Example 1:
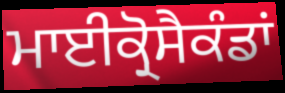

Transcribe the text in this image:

ਮਾਈਕ੍ਰੋਸੈਕੰਡਾਂ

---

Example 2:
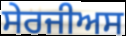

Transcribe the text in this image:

ਸੇਰਜੀਅਸ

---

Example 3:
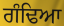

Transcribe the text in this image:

ਗੰਢਿਆ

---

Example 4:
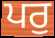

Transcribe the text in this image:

ਪਰੁ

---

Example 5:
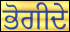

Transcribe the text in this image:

ਭੋਗੀਦੇ